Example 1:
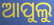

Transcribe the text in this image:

ଆପୁଲୁ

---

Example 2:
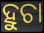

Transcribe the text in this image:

ହୁଚା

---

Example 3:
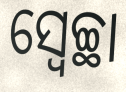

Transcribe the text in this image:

ସ୍ବେଚ୍ଛା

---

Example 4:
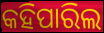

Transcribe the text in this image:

କହିପାରିଲ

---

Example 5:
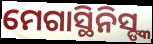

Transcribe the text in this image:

ମେଗାସ୍ଥିନିସ୍ଙ୍କ